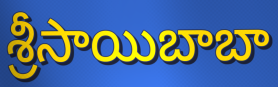
శ్రీసాయిబాబా